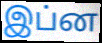
இப்ன